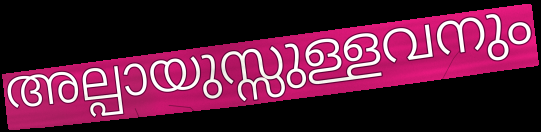
അല്പായുസ്സുള്ളവനും